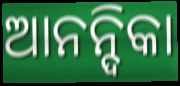
ଆନନ୍ଦିକା